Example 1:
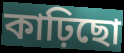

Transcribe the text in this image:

কাঢ়িছো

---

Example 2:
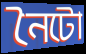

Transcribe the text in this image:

নৈটো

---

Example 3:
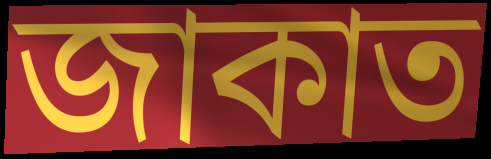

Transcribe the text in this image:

জাকাত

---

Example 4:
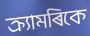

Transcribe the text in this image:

ক্ৰ্যামৰিকে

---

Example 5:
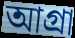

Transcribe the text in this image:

আগ্ৰা